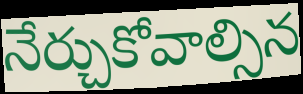
నేర్చుకోవాల్సిన